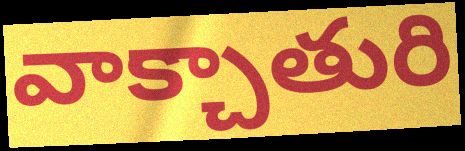
వాక్చాతురి